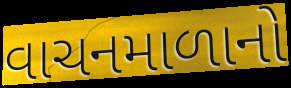
વાચનમાળાનો